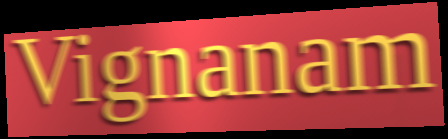
Vignanam